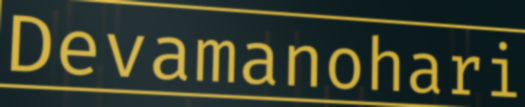
Devamanohari